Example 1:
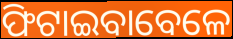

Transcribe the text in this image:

ଫିଟାଇବାବେଳେ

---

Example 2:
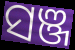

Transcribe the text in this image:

ସଞ୍ଜ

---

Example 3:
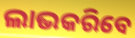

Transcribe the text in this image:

ଲାଭକରିବେ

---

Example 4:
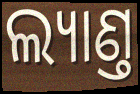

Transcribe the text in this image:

ଲ୍ୟାଣ୍ତ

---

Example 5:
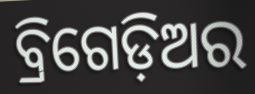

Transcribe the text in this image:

ବ୍ରିଗେଡ଼ିଅର